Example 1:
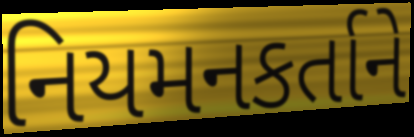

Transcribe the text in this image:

નિયમનકર્તાને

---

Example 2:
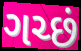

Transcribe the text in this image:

ગચ્છં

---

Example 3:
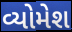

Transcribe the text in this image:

વ્યોમેશ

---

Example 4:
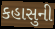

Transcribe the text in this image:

કહાસુની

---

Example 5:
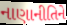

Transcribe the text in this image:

નાણાનીતિને